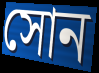
সোন